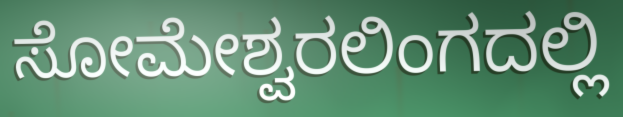
ಸೋಮೇಶ್ವರಲಿಂಗದಲ್ಲಿ